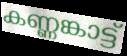
കണ്ണങ്കാട്ട്